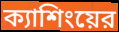
ক্যাশিংয়ের